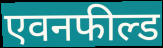
एवनफील्ड